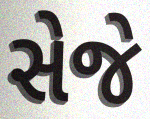
સેજે